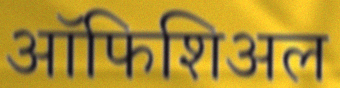
ऑफिशिअल